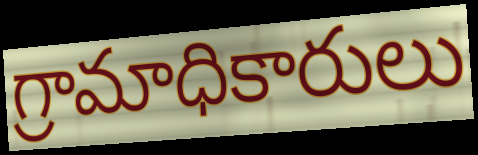
గ్రామాధికారులు